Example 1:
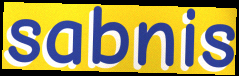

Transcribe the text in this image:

sabnis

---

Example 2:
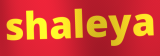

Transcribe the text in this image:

shaleya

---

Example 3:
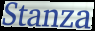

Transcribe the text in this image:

Stanza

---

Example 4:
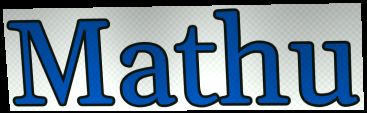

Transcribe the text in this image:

Mathu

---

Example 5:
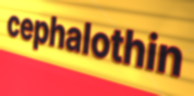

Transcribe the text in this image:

cephalothin